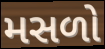
મસળો